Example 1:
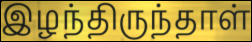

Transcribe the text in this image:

இழந்திருந்தாள்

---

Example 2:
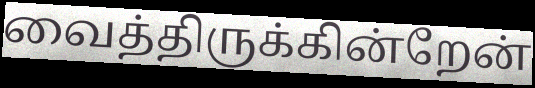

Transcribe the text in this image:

வைத்திருக்கின்றேன்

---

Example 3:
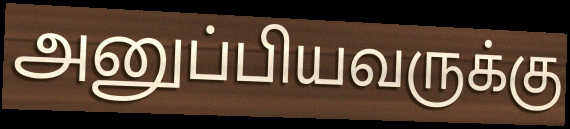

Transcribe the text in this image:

அனுப்பியவருக்கு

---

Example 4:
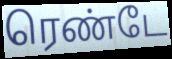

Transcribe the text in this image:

ரெண்டே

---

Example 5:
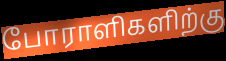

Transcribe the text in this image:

போராளிகளிற்கு